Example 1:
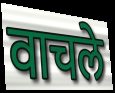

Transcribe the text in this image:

वाचले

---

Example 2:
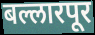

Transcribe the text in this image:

बल्लारपूर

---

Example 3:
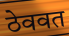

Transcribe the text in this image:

ठेववत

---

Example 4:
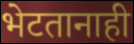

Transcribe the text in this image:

भेटतानाही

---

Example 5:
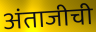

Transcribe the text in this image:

अंताजीची